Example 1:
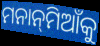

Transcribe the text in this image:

ମନାନ୍‌ମିଆଁକୁ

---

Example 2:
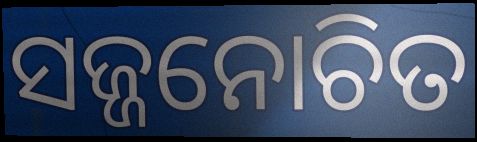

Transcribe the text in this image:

ସଜ୍ଜନୋଚିତ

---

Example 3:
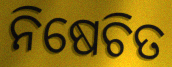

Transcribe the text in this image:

ନିଷେଚିତ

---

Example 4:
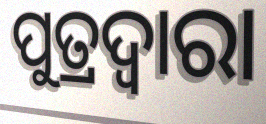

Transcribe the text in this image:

ପୁତ୍ରଦ୍ୱାରା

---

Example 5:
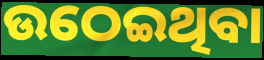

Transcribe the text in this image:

ଉଠେଇଥିବା